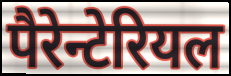
पैरेन्टेरियल